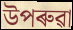
উপৰুৱা